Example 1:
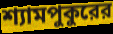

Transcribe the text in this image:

শ্যামপুকুরের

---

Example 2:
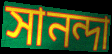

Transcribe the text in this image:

সানন্দা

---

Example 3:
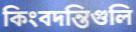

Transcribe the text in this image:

কিংবদন্তিগুলি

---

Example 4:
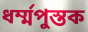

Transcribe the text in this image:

ধর্ম্মপুস্তক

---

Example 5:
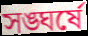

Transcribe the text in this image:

সঙ্ঘর্ষে